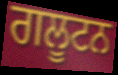
ਗਲੂਟਨ